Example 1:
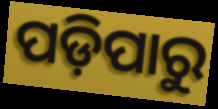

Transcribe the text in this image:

ପଡ଼ିପାରୁ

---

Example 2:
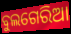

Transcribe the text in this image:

ବୁଲଗେରିଆ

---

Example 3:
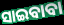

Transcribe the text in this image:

ସାଇବାବା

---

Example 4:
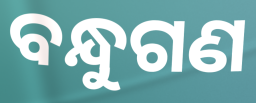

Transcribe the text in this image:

ବନ୍ଧୁଗଣ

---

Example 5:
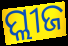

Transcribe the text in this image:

ପ୍ଲୀଜ